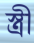
স্ত্রী